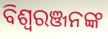
ବିଶ୍ବରଞ୍ଜନଙ୍କ